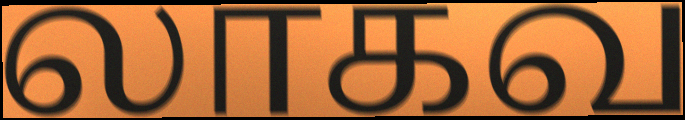
லாகவ